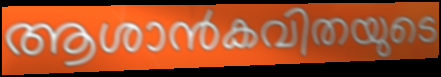
ആശാൻകവിതയുടെ